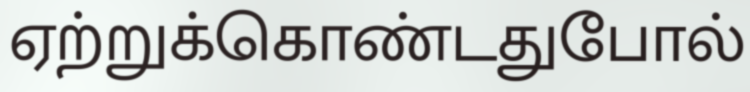
ஏற்றுக்கொண்டதுபோல்